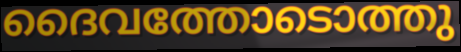
ദൈവത്തോടൊത്തു